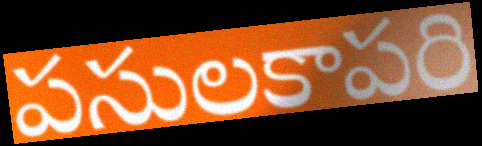
పసులకాపరి